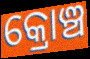
କ୍ରୋଞ୍ଚ